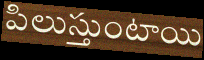
పిలుస్తుంటాయి